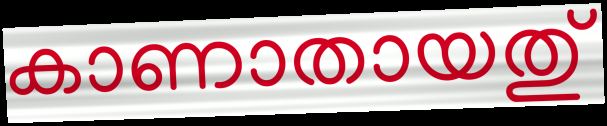
കാണാതായതു്